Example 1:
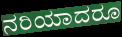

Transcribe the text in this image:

ನರಿಯಾದರೂ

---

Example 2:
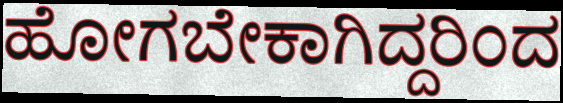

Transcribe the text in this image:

ಹೋಗಬೇಕಾಗಿದ್ದರಿಂದ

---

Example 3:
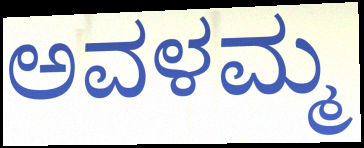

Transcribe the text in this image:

ಅವಳಮ್ಮ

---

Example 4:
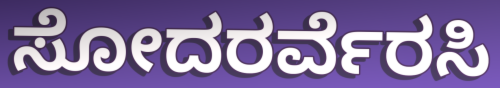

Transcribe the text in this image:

ಸೋದರರ್ವೆರಸಿ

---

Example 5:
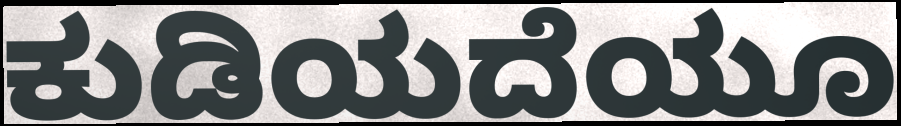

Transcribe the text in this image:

ಕುಡಿಯದೆಯೂ